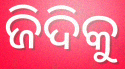
ଜିଦିକୁ